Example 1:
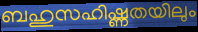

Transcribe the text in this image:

ബഹുസഹിഷ്ണതയിലും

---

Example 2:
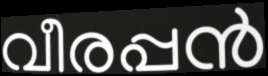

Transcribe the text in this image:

വീരപ്പൻ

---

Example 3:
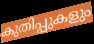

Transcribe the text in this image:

കുതിപ്പുകളും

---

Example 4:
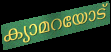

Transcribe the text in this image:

ക്യാമറയോട്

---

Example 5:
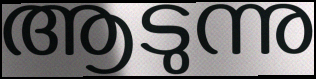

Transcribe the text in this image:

ആടുന്നു